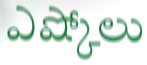
ఎష్కోలు